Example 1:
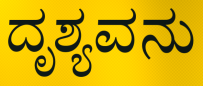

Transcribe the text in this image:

ದೃಶ್ಯವನು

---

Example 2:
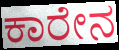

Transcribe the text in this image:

ಕಾರೇನ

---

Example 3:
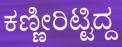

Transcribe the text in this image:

ಕಣ್ಣೀರಿಟ್ಟಿದ್ದ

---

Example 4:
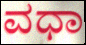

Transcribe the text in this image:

ವಧಾ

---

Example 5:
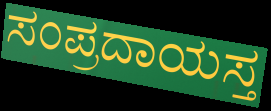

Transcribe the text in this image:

ಸಂಪ್ರದಾಯಸ್ತ